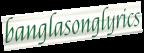
banglasonglyrics